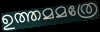
ഉത്തമമത്രേ